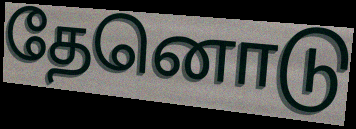
தேனொடு